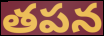
తపన